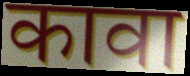
कावा